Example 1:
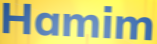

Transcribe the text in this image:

Hamim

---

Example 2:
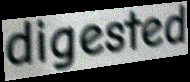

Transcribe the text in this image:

digested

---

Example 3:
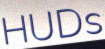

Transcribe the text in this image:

HUDs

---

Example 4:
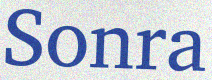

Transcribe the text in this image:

Sonra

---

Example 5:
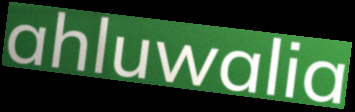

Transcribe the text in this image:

ahluwalia